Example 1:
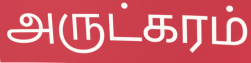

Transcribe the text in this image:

அருட்கரம்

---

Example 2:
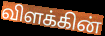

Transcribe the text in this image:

விளக்கின்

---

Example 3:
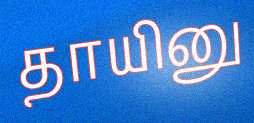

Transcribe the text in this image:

தாயினு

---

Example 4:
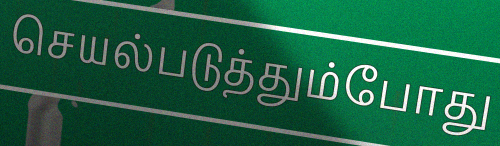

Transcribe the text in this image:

செயல்படுத்தும்போது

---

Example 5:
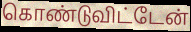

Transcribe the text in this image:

கொண்டுவிட்டேன்